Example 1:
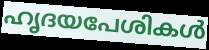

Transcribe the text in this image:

ഹൃദയപേശികൾ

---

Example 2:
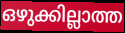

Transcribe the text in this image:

ഒഴുക്കില്ലാത്ത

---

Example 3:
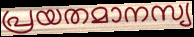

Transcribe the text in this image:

പ്രയതമാനസ്യ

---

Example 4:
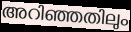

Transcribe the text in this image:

അറിഞ്ഞതിലും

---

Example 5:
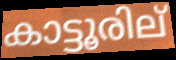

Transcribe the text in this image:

കാട്ടൂരില്